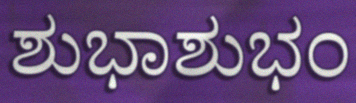
ಶುಭಾಶುಭಂ